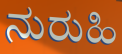
ನುರುಹಿ